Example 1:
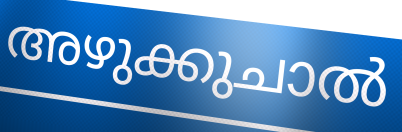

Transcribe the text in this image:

അഴുക്കുചാൽ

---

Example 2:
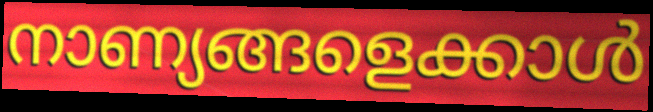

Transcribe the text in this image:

നാണ്യങ്ങളെക്കാൾ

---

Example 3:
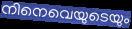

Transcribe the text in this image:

നിനെവെയുടെയും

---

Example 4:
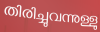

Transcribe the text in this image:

തിരിച്ചുവന്നുള്ളു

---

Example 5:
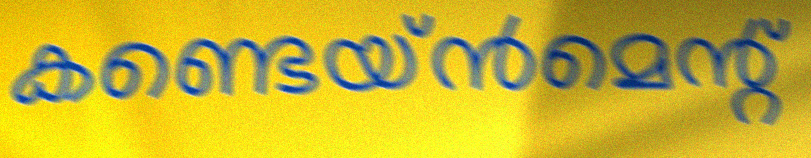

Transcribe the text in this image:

കണ്ടെയ്ൻമെന്റ്